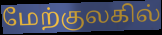
மேற்குலகில்